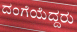
ದಂಗೆಯೆದ್ದರು